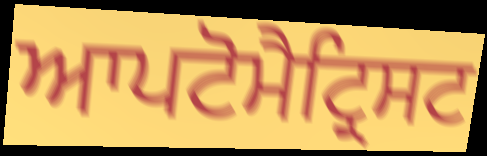
ਆਪਟੋਮੈਟ੍ਰਿਸਟ